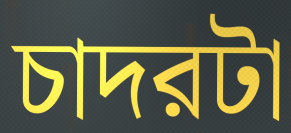
চাদরটা